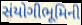
સંયોગીભૂમિની